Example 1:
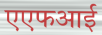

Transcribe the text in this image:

एएफआई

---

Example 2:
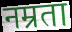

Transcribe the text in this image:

नम्रता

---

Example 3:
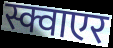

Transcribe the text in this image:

स्क्वाएर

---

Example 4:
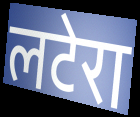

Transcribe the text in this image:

लटेरा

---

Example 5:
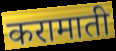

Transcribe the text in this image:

करामाती